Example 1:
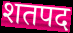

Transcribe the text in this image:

शतपद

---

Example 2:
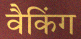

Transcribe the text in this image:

वैकिंग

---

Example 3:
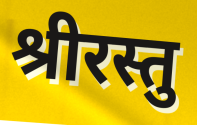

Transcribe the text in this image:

श्रीरस्तु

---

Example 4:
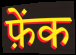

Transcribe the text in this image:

फ़ेंक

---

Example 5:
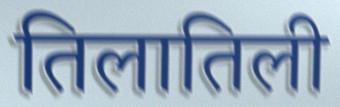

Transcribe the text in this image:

तिलातिली